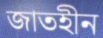
জাতহীন